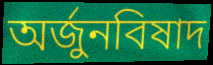
অর্জুনবিষাদ